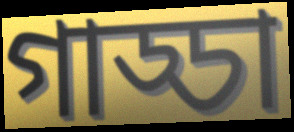
গাড্ডা